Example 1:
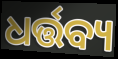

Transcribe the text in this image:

ଧର୍ତ୍ତବ୍ୟ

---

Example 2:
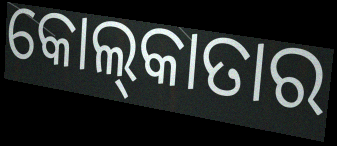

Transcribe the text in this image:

କୋଲ୍‍କାତାର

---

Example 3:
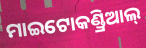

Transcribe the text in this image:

ମାଇଟୋକଣ୍ଡ୍ରିଆଲ୍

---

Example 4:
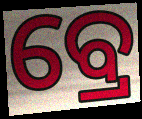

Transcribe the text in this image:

ବ୍ରେ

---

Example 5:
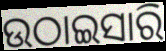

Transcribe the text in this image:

ଉଠାଇସାରି